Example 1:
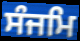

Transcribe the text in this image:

ਸੰਜਮਿ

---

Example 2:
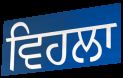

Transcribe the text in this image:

ਵਿਹਲਾ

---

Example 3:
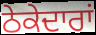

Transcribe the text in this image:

ਠੇਕੇਦਾਰਾਂ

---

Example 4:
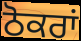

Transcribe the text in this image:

ਠੋਕਰਾਂ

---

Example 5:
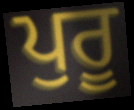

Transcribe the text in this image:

ਪੁਰੂ